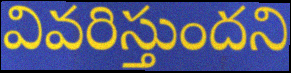
వివరిస్తుందని